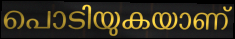
പൊടിയുകയാണ്